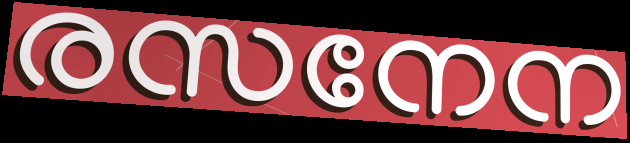
രസനേന